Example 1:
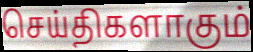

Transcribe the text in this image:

செய்திகளாகும்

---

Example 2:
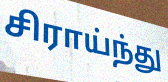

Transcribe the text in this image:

சிராய்ந்து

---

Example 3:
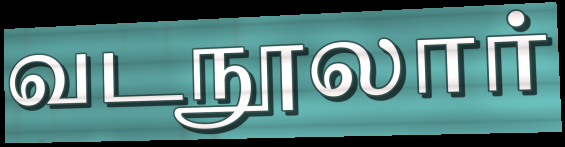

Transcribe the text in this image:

வடநூலார்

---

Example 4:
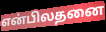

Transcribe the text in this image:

என்பிலதனை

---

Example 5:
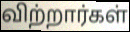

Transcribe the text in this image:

விற்றார்கள்